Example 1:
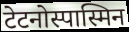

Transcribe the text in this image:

टेटनोस्पास्मिन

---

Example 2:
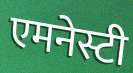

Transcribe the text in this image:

एमनेस्टी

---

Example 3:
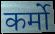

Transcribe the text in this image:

कर्मो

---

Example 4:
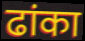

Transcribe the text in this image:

ढांका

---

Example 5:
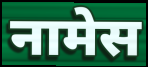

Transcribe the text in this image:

नामेस